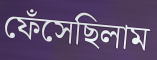
ফেঁসেছিলাম